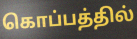
கொப்பத்தில்